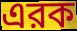
এরক